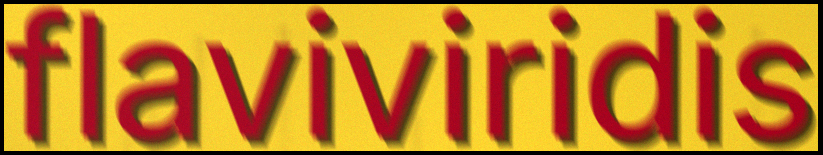
flaviviridis